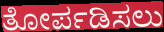
ತೋರ್ಪಡಿಸಲು